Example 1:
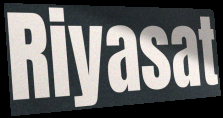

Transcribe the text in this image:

Riyasat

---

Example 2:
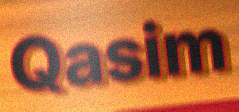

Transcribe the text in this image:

Qasim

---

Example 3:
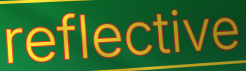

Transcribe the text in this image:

reflective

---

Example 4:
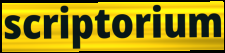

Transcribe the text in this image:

scriptorium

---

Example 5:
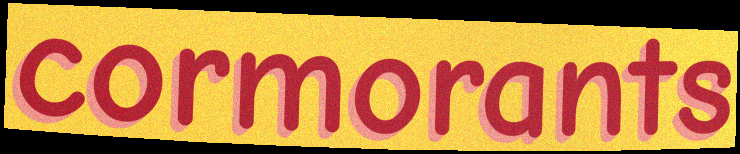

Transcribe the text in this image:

cormorants